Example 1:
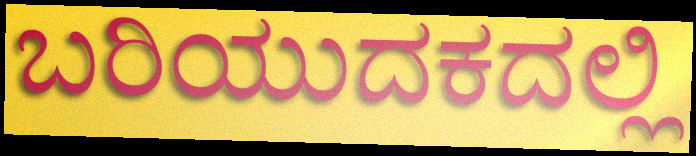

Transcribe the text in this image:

ಬರಿಯುದಕದಲ್ಲಿ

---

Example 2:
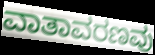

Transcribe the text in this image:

ವಾತಾವರಣವು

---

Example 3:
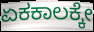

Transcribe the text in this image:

ಏಕಕಾಲಕ್ಕೇ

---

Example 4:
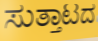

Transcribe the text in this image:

ಸುತ್ತಾಟದ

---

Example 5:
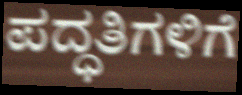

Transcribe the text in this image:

ಪದ್ಧತಿಗಳಿಗೆ